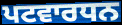
ਪਟਵਾਰਧਨ